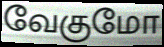
வேகுமோ